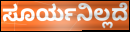
ಸೂರ್ಯನಿಲ್ಲದೆ